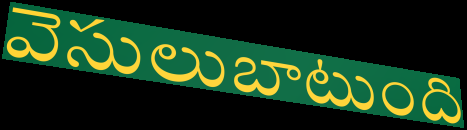
వెసులుబాటుంది